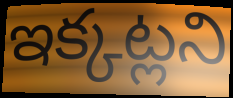
ఇక్కట్లని